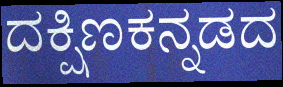
ದಕ್ಷಿಣಕನ್ನಡದ